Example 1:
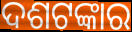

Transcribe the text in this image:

ଦଶଟଙ୍କାର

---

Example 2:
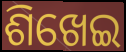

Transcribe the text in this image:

ଶିଖେଇ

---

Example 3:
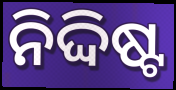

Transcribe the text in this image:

ନିଦ୍ଦିଷ୍ଟ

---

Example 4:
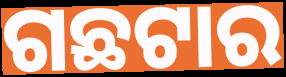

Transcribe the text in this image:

ଗଛଟାର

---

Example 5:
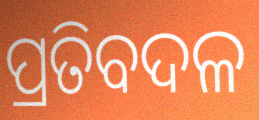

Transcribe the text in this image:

ପ୍ରତିବଦଳ